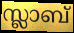
സ്ലാബ്